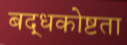
बद्धकोष्टता